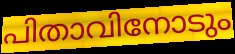
പിതാവിനോടും